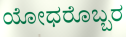
ಯೋಧರೊಬ್ಬರ